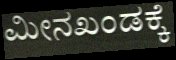
ಮೀನಖಂಡಕ್ಕೆ